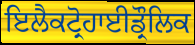
ਇਲੈਕਟ੍ਰੋਹਾਈਡ੍ਰੌਲਿਕ